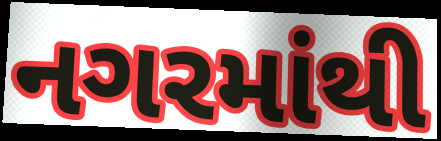
નગરમાંથી